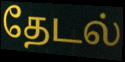
தேடல்